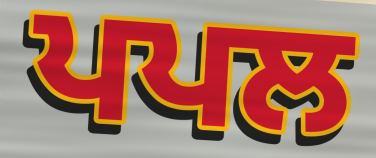
ਪਪਲ